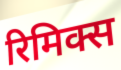
रिमिक्स